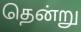
தென்று